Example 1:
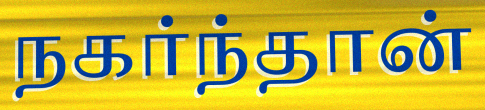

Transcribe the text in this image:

நகர்ந்தான்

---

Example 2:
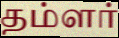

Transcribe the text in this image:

தம்ளர்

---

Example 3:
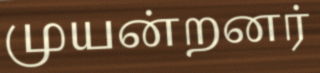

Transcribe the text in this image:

முயன்றனர்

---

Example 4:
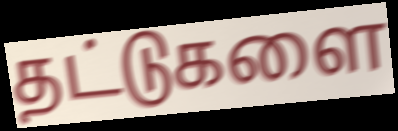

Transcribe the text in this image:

தட்டுகளை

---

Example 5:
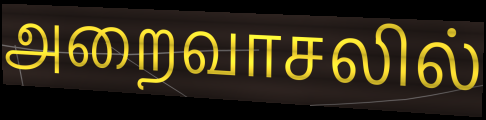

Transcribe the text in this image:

அறைவாசலில்